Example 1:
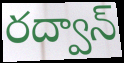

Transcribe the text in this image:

రద్వాన్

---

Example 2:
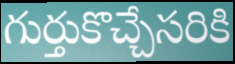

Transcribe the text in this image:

గుర్తుకొచ్చేసరికి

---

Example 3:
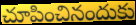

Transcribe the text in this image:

చూపించినందుకు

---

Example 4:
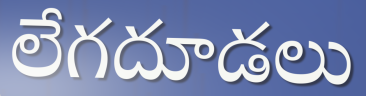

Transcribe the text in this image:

లేగదూడలు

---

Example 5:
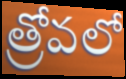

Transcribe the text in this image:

త్రోవలో